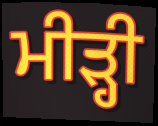
ਮੀੜ੍ਹੀ